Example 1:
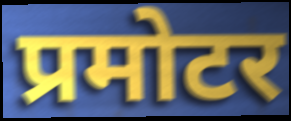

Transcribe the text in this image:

प्रमोटर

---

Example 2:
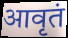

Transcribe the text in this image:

आवृतं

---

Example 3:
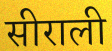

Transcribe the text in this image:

सीराली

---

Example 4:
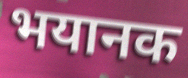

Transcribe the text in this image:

भयानक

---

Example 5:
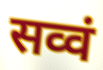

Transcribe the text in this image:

सव्वं